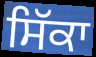
ਸਿੱਕਾ